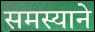
समस्याने